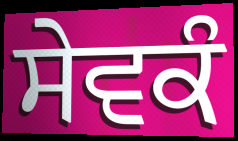
ਸੇਵਕੰ